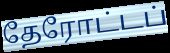
தேரோட்டப்